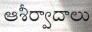
ఆశీర్వాదాలు